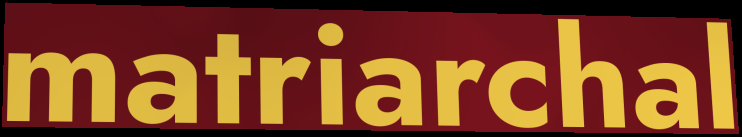
matriarchal